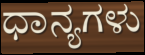
ಧಾನ್ಯಗಳು